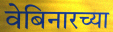
वेबिनारच्या